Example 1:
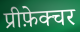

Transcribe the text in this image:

प्रीफ़ेक्चर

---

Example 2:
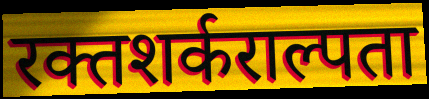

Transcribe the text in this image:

रक्तशर्कराल्पता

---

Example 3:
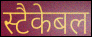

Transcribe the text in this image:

स्टैकेबल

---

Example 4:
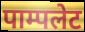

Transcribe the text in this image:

पाम्पलेट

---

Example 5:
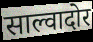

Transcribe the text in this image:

साल्वादोर